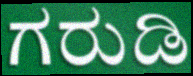
ಗರುಡಿ